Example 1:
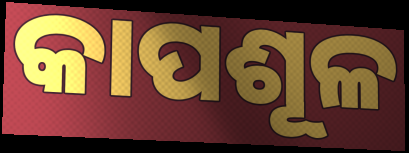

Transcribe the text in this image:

କାପଶୂଳ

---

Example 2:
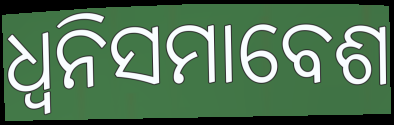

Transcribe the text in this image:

ଧ୍ୱନିସମାବେଶ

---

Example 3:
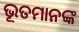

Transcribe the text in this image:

ଭୂତମାନଙ୍କ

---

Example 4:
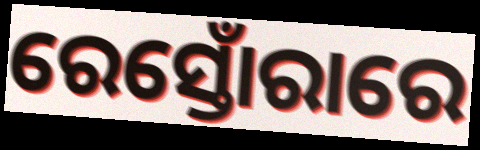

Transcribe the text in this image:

ରେସ୍ତୋଁରାରେ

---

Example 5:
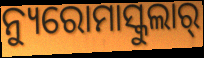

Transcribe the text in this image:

ନ୍ୟୁରୋମାସ୍କୁଲାର୍